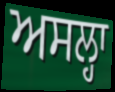
ਅਸਲ੍ਹਾ